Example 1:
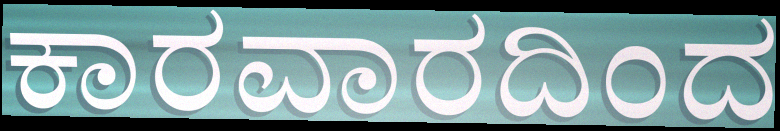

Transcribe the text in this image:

ಕಾರವಾರದಿಂದ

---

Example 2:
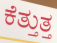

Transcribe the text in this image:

ಕೆತ್ತುತ್ತ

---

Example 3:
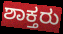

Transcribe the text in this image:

ಶಾಕ್ತರು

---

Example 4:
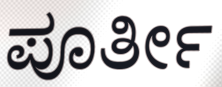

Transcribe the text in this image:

ಪೂರ್ತೀ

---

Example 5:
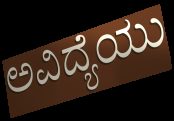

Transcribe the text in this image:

ಅವಿದ್ಯೆಯು